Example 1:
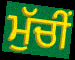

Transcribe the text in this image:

ਮੁੱਚੀਂ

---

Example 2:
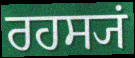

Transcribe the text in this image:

ਰਹਸ੍ਯਂ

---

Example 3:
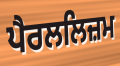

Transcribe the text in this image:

ਪੈਰਲਲਿਜ਼ਮ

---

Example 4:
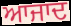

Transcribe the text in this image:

ਆਜਾਦ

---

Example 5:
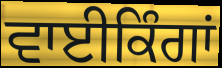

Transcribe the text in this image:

ਵਾਈਕਿੰਗਾਂ